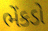
ભેંકડો